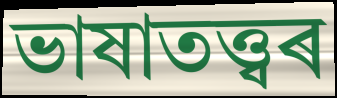
ভাষাতত্ত্বৰ